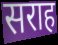
सराह